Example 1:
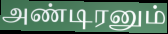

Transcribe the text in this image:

அண்டிரனும்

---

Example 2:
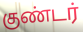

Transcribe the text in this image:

குண்டர்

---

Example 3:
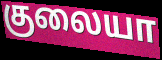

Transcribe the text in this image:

குலையா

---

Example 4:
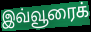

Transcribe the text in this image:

இவ்வூரைக்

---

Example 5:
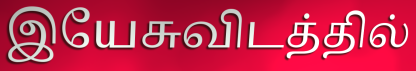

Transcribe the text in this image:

இயேசுவிடத்தில்